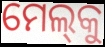
ମେଲ୍‌କୁ